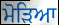
ਮੋੜਿਆ